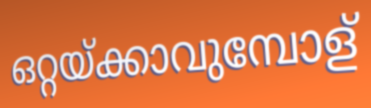
ഒറ്റയ്ക്കാവുമ്പോള്